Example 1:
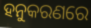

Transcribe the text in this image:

ହନୁକରଣରେ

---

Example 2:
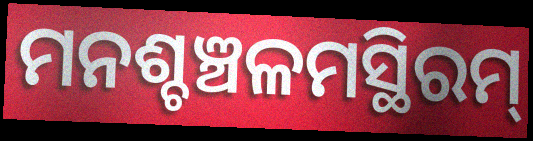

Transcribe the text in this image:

ମନଶ୍ଚଞ୍ଚଳମସ୍ଥିରମ୍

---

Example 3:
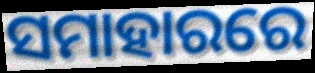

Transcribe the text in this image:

ସମାହାରରେ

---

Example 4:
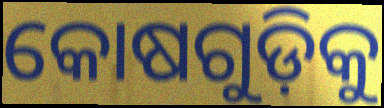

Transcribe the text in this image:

କୋଷଗୁଡ଼ିକୁ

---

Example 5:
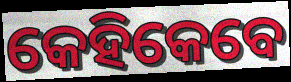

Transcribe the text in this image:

କେହିକେବେ